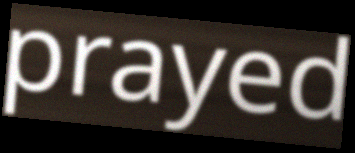
prayed